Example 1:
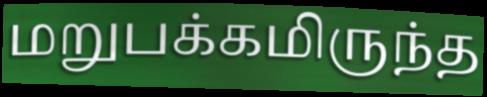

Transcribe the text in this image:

மறுபக்கமிருந்த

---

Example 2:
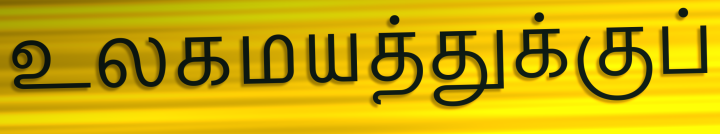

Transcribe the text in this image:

உலகமயத்துக்குப்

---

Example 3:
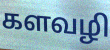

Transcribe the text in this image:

களவழி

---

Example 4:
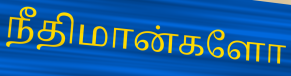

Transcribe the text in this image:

நீதிமான்களோ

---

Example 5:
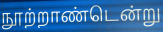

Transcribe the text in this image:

நூற்றாண்டென்று